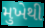
મુખેથી